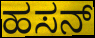
ಹಸನ್